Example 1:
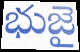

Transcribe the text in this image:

భుజై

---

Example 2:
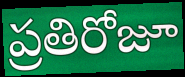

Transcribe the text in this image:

ప్రతిరోజూ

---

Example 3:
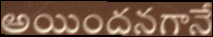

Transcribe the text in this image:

అయిందనగానే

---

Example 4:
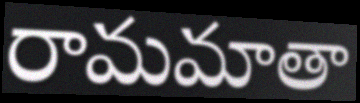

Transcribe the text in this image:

రామమాతా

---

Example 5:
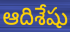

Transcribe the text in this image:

ఆదిశేషు